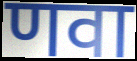
णवा